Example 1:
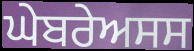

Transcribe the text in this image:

ਘੇਬਰੇਅਸਸ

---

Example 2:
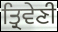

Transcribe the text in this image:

ਤ੍ਰਿਵੇਣੀ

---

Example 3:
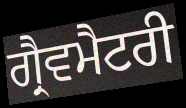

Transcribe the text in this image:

ਗ੍ਰੈਵਮੈਟਰੀ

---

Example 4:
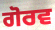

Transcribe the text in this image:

ਗੋਰਵ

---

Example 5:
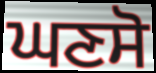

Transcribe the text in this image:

ਘਣਸੋ